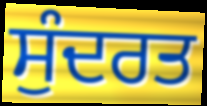
ਸੁੰਦਰਤ